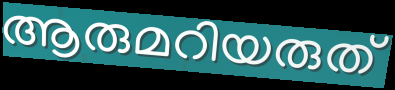
ആരുമറിയരുത്